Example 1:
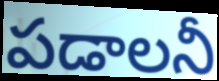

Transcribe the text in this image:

పడాలనీ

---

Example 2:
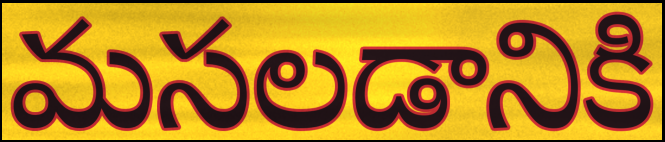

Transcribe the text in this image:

మసలడానికి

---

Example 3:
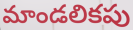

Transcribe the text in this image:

మాండలికపు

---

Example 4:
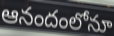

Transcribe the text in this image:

ఆనందంలోనూ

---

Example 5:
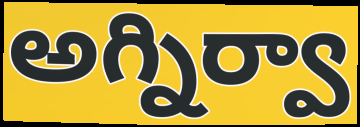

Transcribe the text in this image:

అగ్నిర్వా